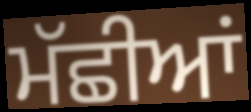
ਮੱਛੀਆਂ